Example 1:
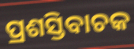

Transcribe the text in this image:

ପ୍ରଶସ୍ତିବାଚକ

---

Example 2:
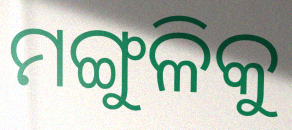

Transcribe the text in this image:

ମଙ୍ଗୁଳିକୁ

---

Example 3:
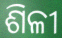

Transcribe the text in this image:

ଶିଳୀ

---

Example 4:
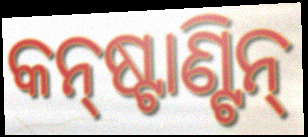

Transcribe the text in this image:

କନ୍‌ଷ୍ଟାଣ୍ଟିନ୍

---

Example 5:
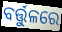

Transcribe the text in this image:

ବର୍ତ୍ତୁଳରେ